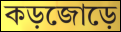
কড়জোড়ে